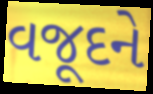
વજૂદને